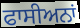
ਫਾਸੀਅਨਾਂ